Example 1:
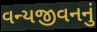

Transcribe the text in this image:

વન્યજીવનનું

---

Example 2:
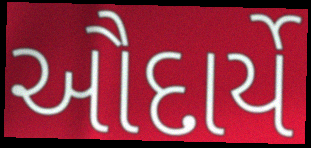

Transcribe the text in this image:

ઔદાર્યે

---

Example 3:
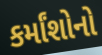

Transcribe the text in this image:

કર્માંશોનો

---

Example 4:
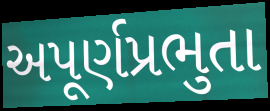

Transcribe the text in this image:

અપૂર્ણપ્રભુતા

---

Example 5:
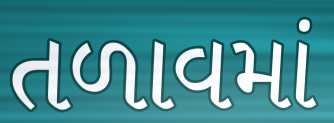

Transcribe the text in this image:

તળાવમાં